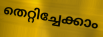
തെറ്റിച്ചേക്കാം